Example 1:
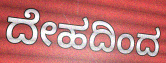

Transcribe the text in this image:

ದೇಹದಿಂದ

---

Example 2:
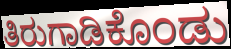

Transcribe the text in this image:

ತಿರುಗಾಡಿಕೊಂಡು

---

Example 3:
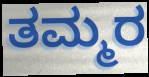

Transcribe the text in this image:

ತಮ್ಮರ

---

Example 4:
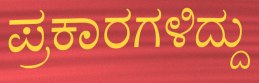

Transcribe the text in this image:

ಪ್ರಕಾರಗಳಿದ್ದು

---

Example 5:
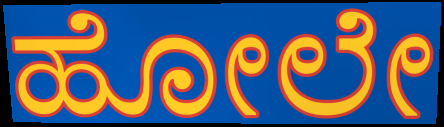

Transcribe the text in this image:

ಹೋಲೇ